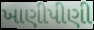
ખાણીપીણી